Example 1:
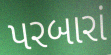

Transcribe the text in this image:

પરબારાં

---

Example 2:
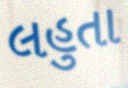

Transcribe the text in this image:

લહુતા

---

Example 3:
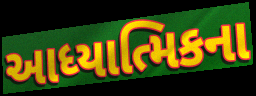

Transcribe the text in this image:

આધ્યાત્મિકના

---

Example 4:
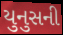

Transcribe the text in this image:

યુનુસની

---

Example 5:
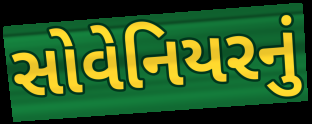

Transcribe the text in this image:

સોવેનિયરનું